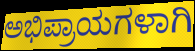
ಅಭಿಪ್ರಾಯಗಳಾಗಿ